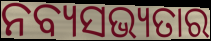
ନବ୍ୟସଭ୍ୟତାର